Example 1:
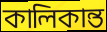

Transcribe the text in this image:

কালিকান্ত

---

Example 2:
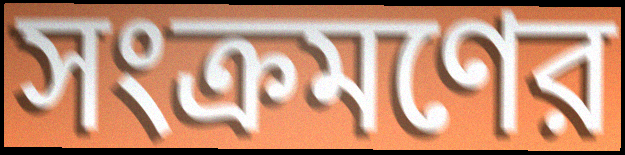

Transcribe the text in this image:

সংক্রমণের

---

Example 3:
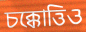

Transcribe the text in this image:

চক্কোত্তিও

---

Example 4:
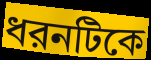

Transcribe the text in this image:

ধরনটিকে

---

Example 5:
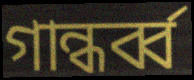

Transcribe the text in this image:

গান্ধর্ব্ব